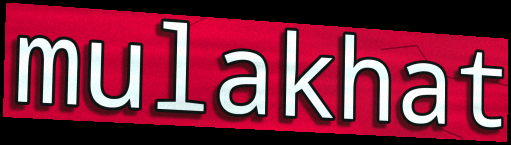
mulakhat